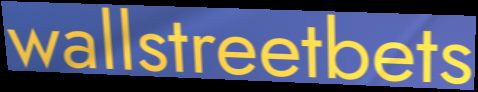
wallstreetbets